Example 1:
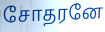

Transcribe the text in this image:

சோதரனே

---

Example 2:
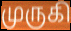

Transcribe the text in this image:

முருகி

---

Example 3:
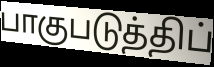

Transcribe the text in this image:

பாகுபடுத்திப்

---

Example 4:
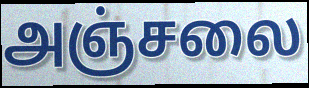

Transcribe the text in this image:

அஞ்சலை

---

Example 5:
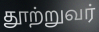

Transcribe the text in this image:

தூற்றுவர்